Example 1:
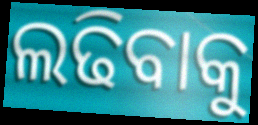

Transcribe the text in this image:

ଲଢିବାକୁ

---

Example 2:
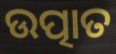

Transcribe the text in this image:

ଉତ୍ପାତ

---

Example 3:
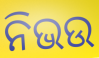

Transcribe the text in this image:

ନିଭଉ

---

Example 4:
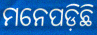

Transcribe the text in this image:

ମନେପଡ଼ିଛି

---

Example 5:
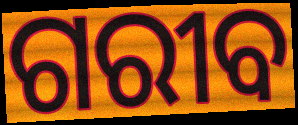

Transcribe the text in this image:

ଗରୀବ